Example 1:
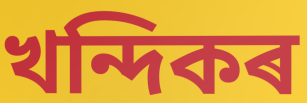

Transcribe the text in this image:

খন্দিকৰ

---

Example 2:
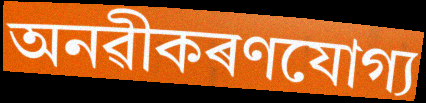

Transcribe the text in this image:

অনৱীকৰণযোগ্য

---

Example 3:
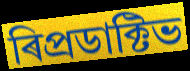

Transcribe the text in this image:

ৰিপ্ৰডাক্টিভ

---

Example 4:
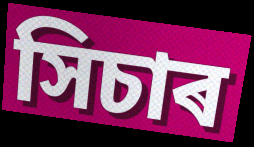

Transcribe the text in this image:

সিচাৰ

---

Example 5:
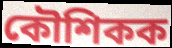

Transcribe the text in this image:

কৌশিকক